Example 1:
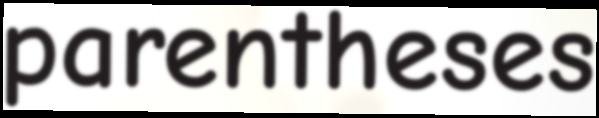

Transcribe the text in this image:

parentheses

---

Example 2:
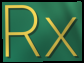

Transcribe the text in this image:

Rx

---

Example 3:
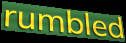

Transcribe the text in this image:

rumbled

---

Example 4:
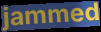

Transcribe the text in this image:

jammed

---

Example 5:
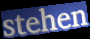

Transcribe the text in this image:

stehen